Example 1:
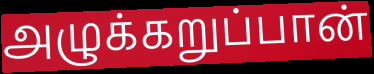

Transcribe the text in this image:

அழுக்கறுப்பான்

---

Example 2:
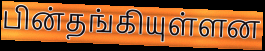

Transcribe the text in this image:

பின்தங்கியுள்ளன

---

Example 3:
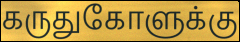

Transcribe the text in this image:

கருதுகோளுக்கு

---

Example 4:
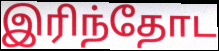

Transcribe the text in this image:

இரிந்தோட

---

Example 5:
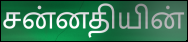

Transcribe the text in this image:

சன்னதியின்